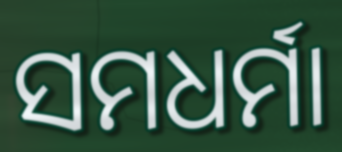
ସମଧର୍ମା